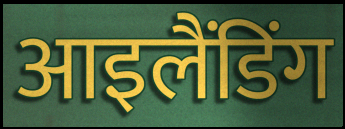
आइलैंडिंग